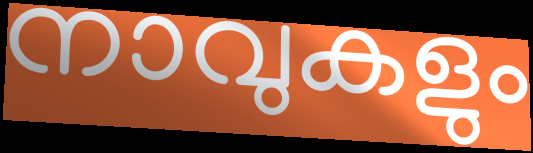
നാവുകളും